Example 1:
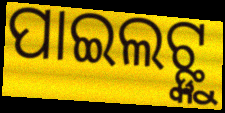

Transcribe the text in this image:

ପାଇଲଟ୍ଙ୍କୁ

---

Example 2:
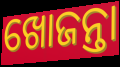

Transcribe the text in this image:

ଖୋଜନ୍ତା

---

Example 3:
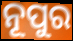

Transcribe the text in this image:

ନୂପୁର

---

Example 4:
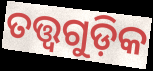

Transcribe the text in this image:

ତତ୍ତ୍ବଗୁଡ଼ିକ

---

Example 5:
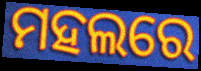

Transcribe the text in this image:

ମହଲରେ